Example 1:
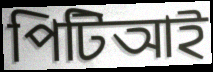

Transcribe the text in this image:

পিটিআই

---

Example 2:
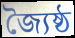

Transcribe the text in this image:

জ্যৈষ্ঠ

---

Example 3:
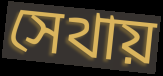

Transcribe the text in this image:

সেথায়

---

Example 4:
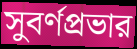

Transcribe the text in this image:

সুবর্ণপ্রভার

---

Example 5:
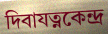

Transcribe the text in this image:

দিবাযত্নকেন্দ্র